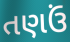
તણઉં